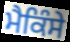
ਮੈਕਿੰਸੇ